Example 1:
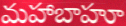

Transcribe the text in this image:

మహాబాహూ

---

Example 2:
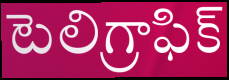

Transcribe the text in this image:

టెలిగ్రాఫిక్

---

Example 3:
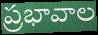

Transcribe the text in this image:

ప్రభావాల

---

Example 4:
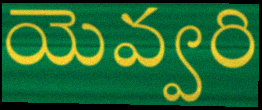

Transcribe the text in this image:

యెవ్వరి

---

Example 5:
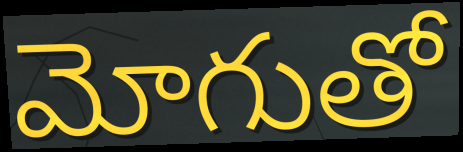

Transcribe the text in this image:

మోగుతో